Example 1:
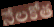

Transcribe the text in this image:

నేలకోత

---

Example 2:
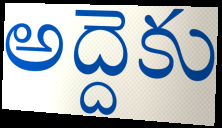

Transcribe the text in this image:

అద్దెకు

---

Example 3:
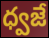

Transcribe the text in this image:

ధ్వజే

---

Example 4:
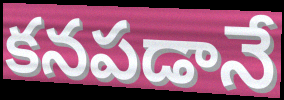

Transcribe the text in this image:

కనపడానే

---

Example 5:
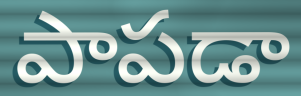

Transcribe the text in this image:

పాపడా